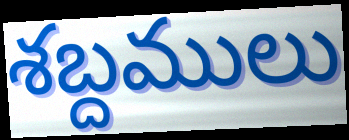
శబ్దములు